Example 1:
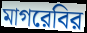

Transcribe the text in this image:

মাগরেবির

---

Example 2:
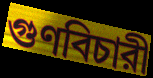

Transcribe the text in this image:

গুণবিচারী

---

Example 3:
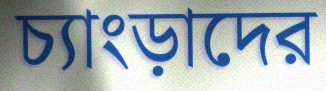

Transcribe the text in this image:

চ্যাংড়াদের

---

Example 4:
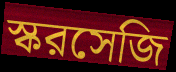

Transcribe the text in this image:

স্করসেজি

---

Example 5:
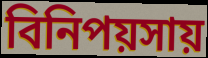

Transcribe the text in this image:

বিনিপয়সায়